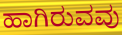
ಹಾಗಿರುವವು